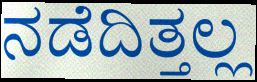
ನಡೆದಿತ್ತಲ್ಲ